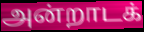
அன்றாடக்